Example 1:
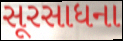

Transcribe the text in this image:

સૂરસાધના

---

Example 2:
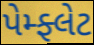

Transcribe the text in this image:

પેમ્ફ્લેટ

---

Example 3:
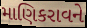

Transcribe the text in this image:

માણિકરાવને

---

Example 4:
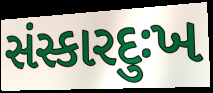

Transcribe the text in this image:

સંસ્કારદુઃખ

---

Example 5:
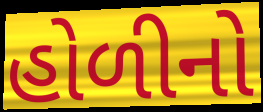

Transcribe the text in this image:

હોળીનો